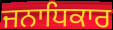
ਜਨਾਧਿਕਾਰ